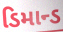
ડિમાન્ડ